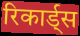
रिकार्ड्स